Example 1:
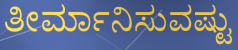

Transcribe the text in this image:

ತೀರ್ಮಾನಿಸುವಷ್ಟು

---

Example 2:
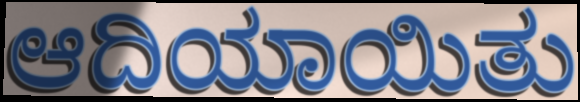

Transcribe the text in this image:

ಆದಿಯಾಯಿತು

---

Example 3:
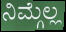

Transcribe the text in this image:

ನಿಮ್ಗೆಲ್ಲ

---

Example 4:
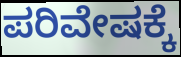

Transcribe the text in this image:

ಪರಿವೇಷಕ್ಕೆ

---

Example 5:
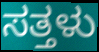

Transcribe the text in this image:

ಸತ್ತಳು